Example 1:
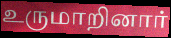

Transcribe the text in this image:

உருமாறினார்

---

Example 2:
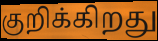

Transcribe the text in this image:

குறிக்கிறது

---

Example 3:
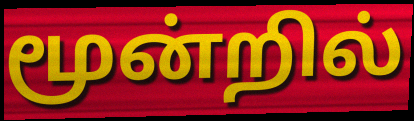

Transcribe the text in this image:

மூன்றில்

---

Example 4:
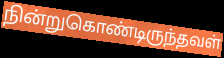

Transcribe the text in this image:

நின்றுகொண்டிருந்தவள்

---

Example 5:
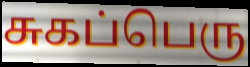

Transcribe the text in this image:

சுகப்பெரு